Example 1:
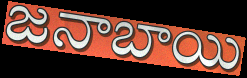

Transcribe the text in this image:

జనాబాయి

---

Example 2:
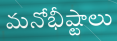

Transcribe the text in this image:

మనోభీష్టాలు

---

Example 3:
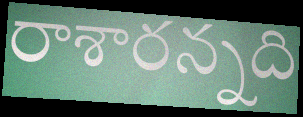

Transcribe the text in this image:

రాశారన్నది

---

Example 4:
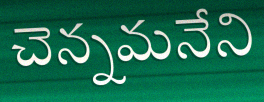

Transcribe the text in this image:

చెన్నమనేని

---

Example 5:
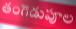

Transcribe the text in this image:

తంగెడుపూల